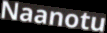
Naanotu